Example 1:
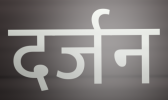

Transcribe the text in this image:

दर्जन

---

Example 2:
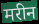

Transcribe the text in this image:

मरीन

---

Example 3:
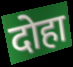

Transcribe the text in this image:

दोहा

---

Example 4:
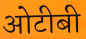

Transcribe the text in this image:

ओटीबी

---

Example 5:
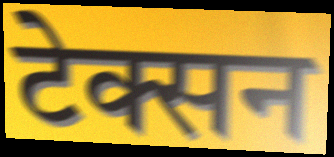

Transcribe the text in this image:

टेक्सन